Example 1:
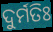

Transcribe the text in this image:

ଦୁର୍ମତିଃ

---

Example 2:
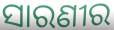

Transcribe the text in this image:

ସାରଣୀର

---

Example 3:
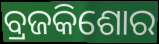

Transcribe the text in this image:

ବ୍ରଜକିଶୋର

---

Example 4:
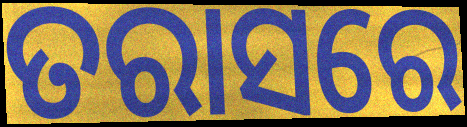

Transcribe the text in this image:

ତରାସରେ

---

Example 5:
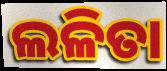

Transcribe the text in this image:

ଲଳିତା